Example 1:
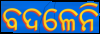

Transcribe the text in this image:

ବଦଳେନି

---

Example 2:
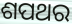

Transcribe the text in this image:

ଶପଥର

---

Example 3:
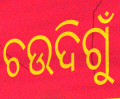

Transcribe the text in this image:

ଚଉଦିଗୁଁ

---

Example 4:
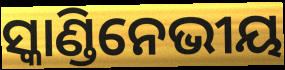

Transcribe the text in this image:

ସ୍କାଣ୍ଡିନେଭୀୟ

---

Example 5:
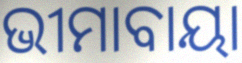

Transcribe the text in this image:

ଭୀମାବାୟା